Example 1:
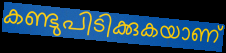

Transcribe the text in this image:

കണ്ടുപിടിക്കുകയാണ്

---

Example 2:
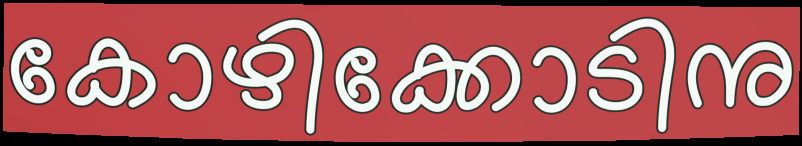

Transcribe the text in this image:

കോഴിക്കോടിനു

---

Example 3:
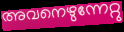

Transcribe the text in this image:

അവനെഴുന്നേറ്റു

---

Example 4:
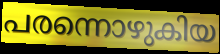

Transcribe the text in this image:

പരന്നൊഴുകിയ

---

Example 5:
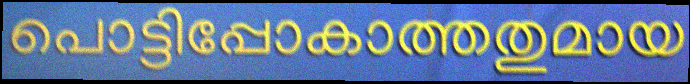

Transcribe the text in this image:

പൊട്ടിപ്പോകാത്തതുമായ